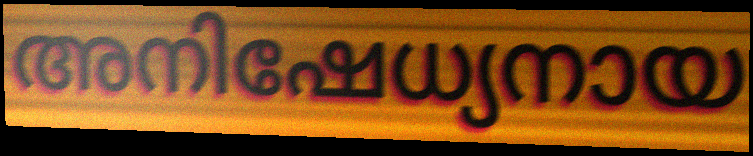
അനിഷേധ്യനായ